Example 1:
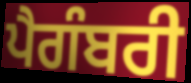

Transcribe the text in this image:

ਪੈਗੰਬਰੀ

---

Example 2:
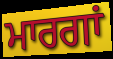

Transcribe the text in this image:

ਮਾਰਗਾਂ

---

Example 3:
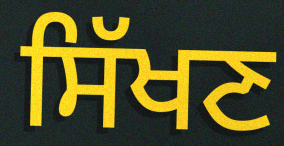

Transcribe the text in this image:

ਸਿੱਖਣ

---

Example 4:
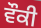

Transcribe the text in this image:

ਵੌਕੀ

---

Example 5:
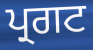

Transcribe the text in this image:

ਪ੍ਰਗਟ